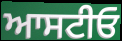
ਆਸਟੀਓ